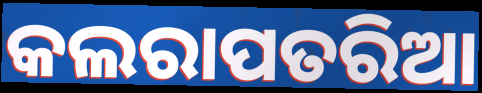
କଲରାପତରିଆ